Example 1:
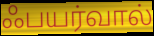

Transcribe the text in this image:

ஃபயர்வால்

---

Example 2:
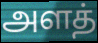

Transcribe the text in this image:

அளத்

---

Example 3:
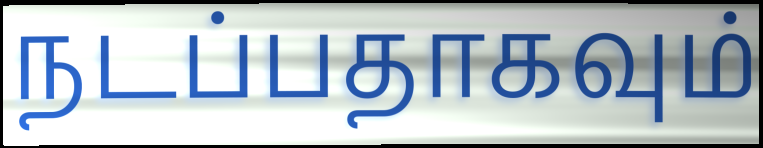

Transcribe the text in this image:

நடப்பதாகவும்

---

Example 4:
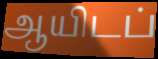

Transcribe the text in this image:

ஆயிடப்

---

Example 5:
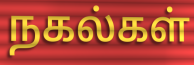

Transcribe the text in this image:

நகல்கள்